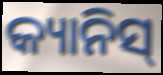
କ୍ୟାନିସ୍